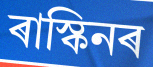
ৰাস্কিনৰ